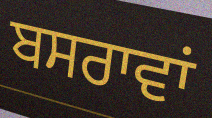
ਬਸਰਾਵਾਂ